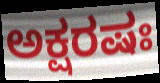
ಅಕ್ಷರಷಃ